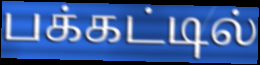
பக்கட்டில்